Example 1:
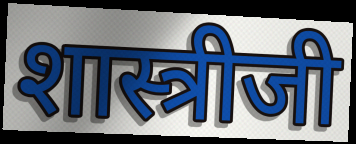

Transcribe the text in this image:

शास्त्रीजी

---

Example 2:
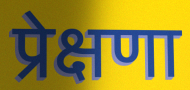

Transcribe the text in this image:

प्रेक्षणा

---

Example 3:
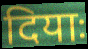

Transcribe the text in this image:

दियाः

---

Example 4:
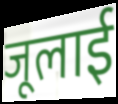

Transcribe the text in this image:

जूलाई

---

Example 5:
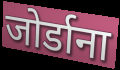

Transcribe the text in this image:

जोर्डाना